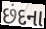
છંદના